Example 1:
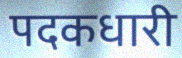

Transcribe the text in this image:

पदकधारी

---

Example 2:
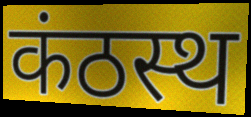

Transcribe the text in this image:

कंठस्थ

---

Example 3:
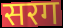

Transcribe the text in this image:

सरग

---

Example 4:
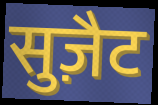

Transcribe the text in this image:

सुज़ैट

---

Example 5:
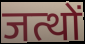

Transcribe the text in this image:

जत्थों